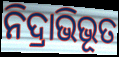
ନିଦ୍ରାଭିଭୂତ